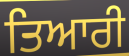
ਤਿਆਰੀ